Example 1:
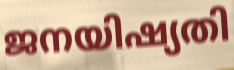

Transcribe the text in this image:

ജനയിഷ്യതി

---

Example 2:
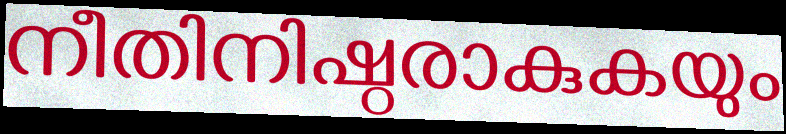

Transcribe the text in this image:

നീതിനിഷ്ഠരാകുകയും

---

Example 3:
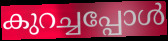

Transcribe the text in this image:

കുറച്ചപ്പോൾ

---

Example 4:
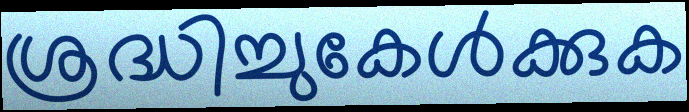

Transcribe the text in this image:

ശ്രദ്ധിച്ചുകേൾക്കുക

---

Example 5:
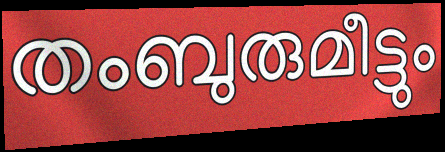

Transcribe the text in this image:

തംബുരുമീട്ടും